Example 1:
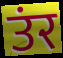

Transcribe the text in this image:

उंर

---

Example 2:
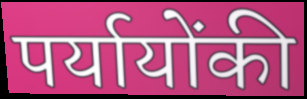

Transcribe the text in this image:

पर्यायोंकी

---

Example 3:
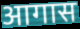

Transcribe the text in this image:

आगास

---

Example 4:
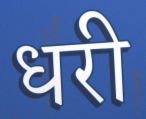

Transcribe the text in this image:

धरी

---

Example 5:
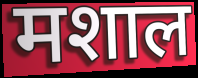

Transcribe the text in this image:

मशाल